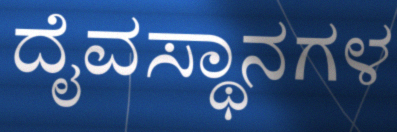
ದೈವಸ್ಥಾನಗಳ